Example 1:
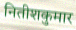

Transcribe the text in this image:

नितीशकुमार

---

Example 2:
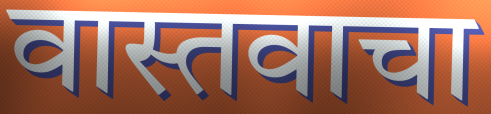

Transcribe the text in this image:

वास्तवाचा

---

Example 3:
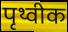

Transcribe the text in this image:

पृथ्वीक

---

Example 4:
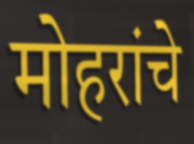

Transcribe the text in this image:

मोहरांचे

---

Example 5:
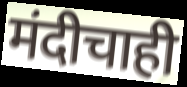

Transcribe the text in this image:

मंदीचाही